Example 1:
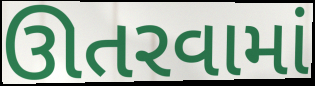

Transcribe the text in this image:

ઊતરવામાં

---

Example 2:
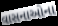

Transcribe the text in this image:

વાસનાઓના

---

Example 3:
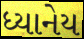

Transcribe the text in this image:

ધ્યાનેય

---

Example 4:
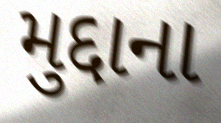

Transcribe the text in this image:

મુદ્દાના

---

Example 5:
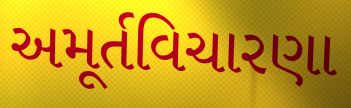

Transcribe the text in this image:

અમૂર્તવિચારણા